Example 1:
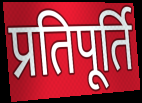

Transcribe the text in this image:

प्रतिपूर्ति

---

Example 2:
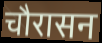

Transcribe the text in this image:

चौरासन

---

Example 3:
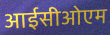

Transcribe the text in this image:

आईसीओएम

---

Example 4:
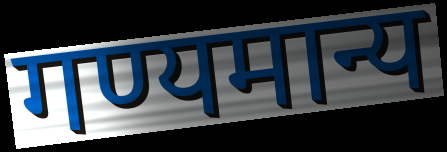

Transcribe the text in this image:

गण्यमान्य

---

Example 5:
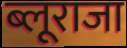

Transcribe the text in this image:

ब्लूराजा